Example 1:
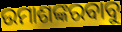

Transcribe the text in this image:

ଉମାଶଙ୍କରବାବୁ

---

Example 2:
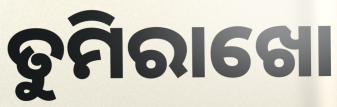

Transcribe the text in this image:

ତୁମିରାଖୋ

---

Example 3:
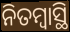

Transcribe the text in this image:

ନିତମ୍ବାସ୍ଥି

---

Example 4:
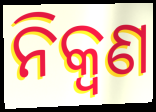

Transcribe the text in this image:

ନିକ୍ୱଣ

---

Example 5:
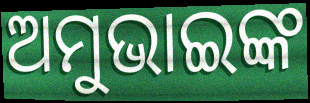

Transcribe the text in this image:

ଅମୁଭାଇଙ୍କ